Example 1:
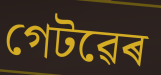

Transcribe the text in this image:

গেটৱেৰ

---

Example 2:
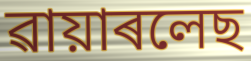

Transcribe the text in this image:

ৱায়াৰলেছ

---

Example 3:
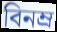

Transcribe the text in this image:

বিনম্ৰ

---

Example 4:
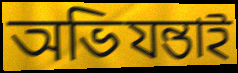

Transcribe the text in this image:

অভিযন্তাই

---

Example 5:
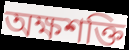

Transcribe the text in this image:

অক্ষশক্তি